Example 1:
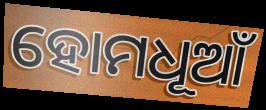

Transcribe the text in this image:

ହୋମଧୂଆଁ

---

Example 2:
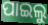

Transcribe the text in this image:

ପାଇଲୁ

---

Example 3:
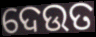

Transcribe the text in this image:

ଦେଉତ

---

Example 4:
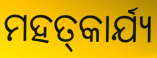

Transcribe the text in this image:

ମହତ୍‌କାର୍ଯ୍ୟ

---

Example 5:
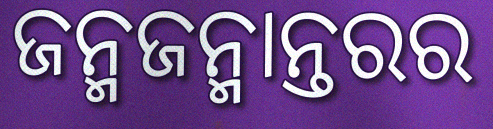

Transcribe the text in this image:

ଜନ୍ମଜନ୍ମାନ୍ତରର